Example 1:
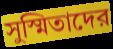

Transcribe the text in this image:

সুস্মিতাদের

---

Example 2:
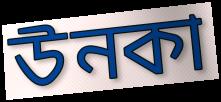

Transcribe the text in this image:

উনকা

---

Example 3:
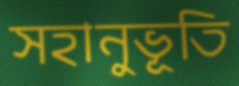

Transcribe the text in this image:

সহানুভূতি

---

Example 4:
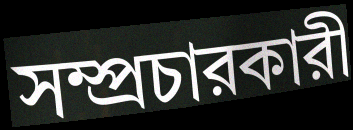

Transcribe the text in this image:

সম্প্রচারকারী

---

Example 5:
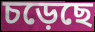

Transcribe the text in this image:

চড়েছে